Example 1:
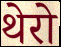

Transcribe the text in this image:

थेरो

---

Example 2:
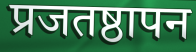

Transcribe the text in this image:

प्रजतष्ठापन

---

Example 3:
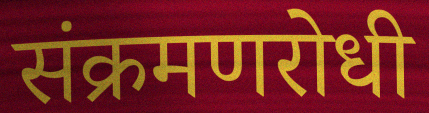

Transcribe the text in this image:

संक्रमणरोधी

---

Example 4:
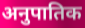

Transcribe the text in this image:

अनुपातिक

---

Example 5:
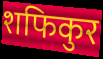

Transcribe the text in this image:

शफिकुर